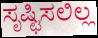
ಸೃಷ್ಟಿಸಲಿಲ್ಲ